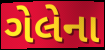
ગેલેના